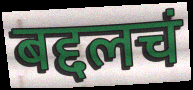
बद्दलचं